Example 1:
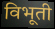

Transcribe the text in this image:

विभूती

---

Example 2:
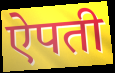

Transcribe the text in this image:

ऐपती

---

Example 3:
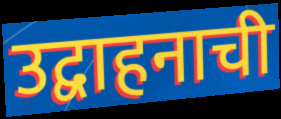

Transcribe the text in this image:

उद्वाहनाची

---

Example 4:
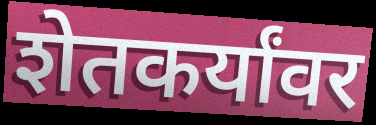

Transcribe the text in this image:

शेतकर्यांवर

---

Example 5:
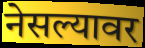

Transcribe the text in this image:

नेसल्यावर